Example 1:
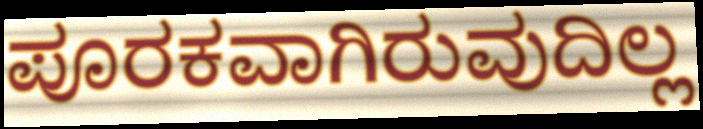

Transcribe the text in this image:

ಪೂರಕವಾಗಿರುವುದಿಲ್ಲ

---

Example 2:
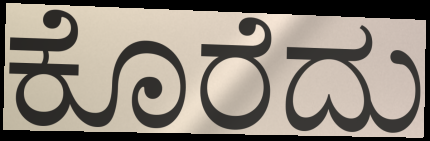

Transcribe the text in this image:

ಕೊರೆದು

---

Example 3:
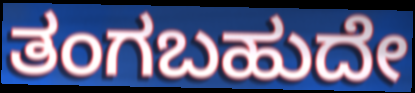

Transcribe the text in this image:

ತಂಗಬಹುದೇ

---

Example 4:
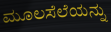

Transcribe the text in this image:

ಮೂಲಸೆಲೆಯನ್ನು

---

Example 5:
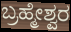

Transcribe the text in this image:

ಬ್ರಹ್ಮೇಶ್ವರ